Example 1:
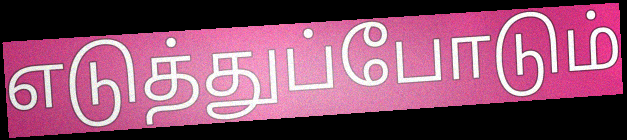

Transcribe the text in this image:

எடுத்துப்போடும்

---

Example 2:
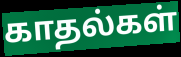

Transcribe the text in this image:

காதல்கள்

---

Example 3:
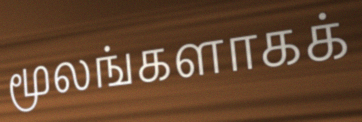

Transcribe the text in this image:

மூலங்களாகக்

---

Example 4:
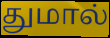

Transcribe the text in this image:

துமால்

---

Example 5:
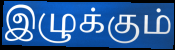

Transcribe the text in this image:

இழுக்கும்